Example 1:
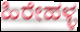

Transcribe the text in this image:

ಹಿರೇಹಳ್ಳ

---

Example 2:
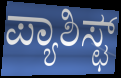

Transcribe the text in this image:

ಪ್ಯಾಶಿಸ್ಟ್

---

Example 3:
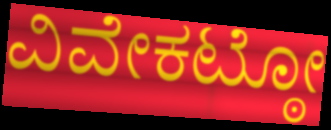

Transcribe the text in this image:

ವಿವೇಕಟ್ಠೋ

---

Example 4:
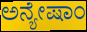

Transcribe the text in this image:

ಅನ್ಯೇಷಾಂ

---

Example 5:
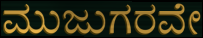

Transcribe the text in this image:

ಮುಜುಗರವೇ